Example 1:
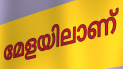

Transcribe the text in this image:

മേളയിലാണ്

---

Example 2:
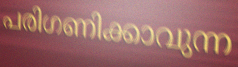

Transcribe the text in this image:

പരിഗണിക്കാവുന്ന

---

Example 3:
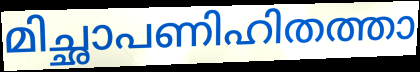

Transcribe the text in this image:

മിച്ഛാപണിഹിതത്താ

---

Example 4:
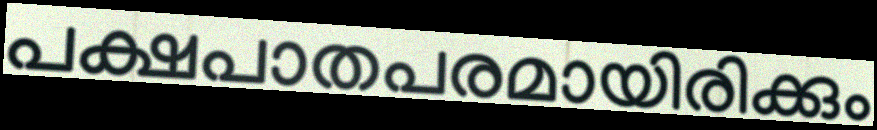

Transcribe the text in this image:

പക്ഷപാതപരമായിരിക്കും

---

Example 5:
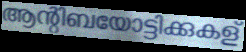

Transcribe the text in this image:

ആന്റിബയോട്ടിക്കുകള്